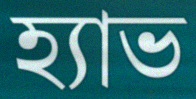
হ্যাভ